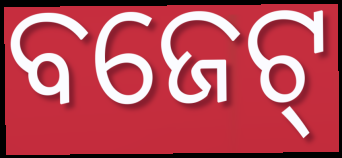
ବଜେଟ୍